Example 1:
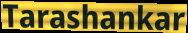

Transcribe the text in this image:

Tarashankar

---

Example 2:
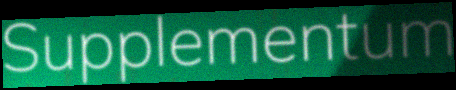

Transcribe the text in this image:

Supplementum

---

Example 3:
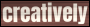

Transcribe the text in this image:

creatively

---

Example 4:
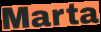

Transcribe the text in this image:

Marta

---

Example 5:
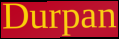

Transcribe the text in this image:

Durpan